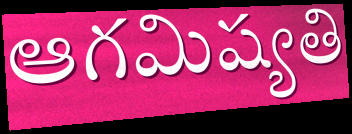
ఆగమిష్యతి